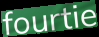
fourtie